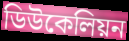
ডিউকেলিয়ন